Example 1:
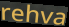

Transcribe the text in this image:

rehva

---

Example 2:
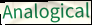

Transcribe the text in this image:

Analogical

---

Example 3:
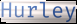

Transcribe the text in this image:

Hurley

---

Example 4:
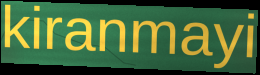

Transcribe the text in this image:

kiranmayi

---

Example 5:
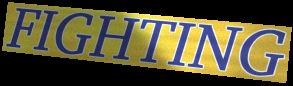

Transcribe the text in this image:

FIGHTING